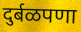
दुर्बळपणा